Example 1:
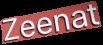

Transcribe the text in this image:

Zeenat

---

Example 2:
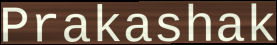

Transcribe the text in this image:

Prakashak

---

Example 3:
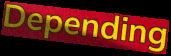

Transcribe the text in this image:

Depending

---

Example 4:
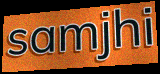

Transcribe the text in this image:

samjhi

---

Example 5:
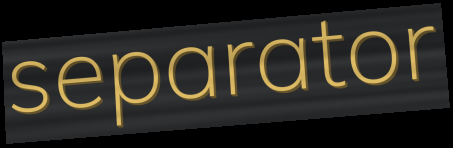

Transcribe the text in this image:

separator